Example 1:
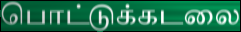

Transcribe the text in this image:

பொட்டுக்கடலை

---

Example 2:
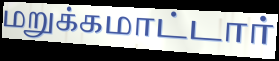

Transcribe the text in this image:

மறுக்கமாட்டார்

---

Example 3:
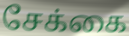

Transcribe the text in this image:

சேக்கை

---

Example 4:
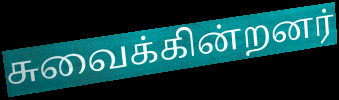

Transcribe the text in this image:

சுவைக்கின்றனர்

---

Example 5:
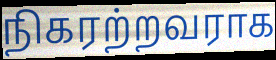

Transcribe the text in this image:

நிகரற்றவராக